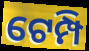
ଟେମ୍ପି